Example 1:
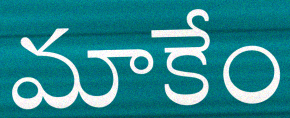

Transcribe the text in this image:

మాకేం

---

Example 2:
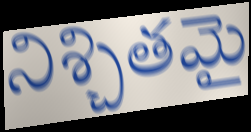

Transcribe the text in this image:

నిశ్చితమై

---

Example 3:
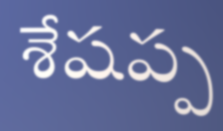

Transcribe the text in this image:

శేషప్ప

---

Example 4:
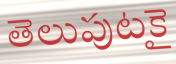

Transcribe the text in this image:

తెలుపుటకై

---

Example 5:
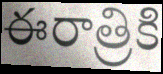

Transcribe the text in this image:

ఈరాత్రికి